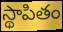
స్థాపితం